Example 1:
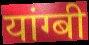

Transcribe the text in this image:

यांग्बी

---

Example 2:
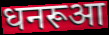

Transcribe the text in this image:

धनरूआ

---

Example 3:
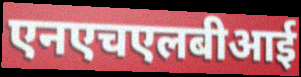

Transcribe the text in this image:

एनएचएलबीआई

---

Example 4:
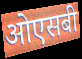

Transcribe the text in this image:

ओएसबी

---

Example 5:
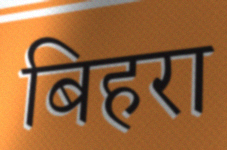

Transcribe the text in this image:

बिहरा